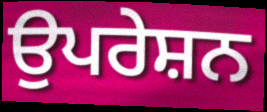
ਉਪਰੇਸ਼ਨ